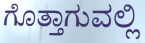
ಗೊತ್ತಾಗುವಲ್ಲಿ